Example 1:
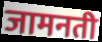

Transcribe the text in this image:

जामनती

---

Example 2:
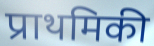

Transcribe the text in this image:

प्राथमिकी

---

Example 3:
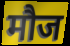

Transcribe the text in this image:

मौज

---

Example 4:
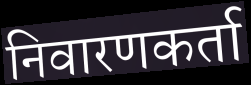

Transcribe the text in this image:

निवारणकर्ता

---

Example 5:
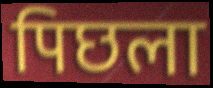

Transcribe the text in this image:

पिछला